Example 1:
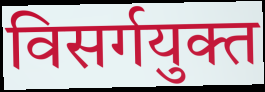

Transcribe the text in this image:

विसर्गयुक्त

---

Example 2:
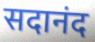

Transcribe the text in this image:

सदानंद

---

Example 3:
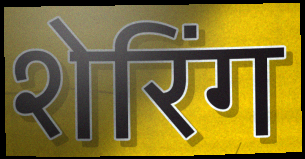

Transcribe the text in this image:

शेरिंग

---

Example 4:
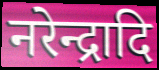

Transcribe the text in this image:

नरेन्द्रादि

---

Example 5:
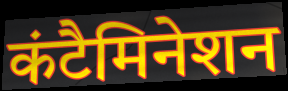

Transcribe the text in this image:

कंटैमिनेशन